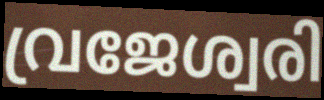
വ്രജേശ്വരി